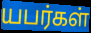
யபர்கள்